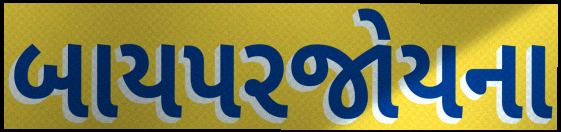
બાયપરજોયના